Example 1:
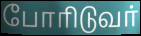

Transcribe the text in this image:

போரிடுவர்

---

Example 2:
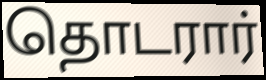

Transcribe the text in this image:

தொடரார்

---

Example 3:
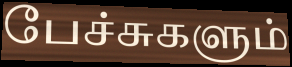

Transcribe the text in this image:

பேச்சுகளும்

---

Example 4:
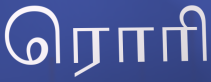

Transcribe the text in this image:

ரொரி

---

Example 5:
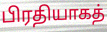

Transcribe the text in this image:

பிரதியாகத்